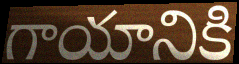
గాయానికి